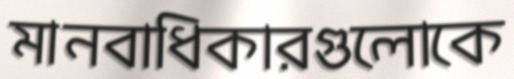
মানবাধিকারগুলোকে